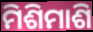
ମିଶିମାଶି